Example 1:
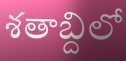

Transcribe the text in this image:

శతాబ్దిలో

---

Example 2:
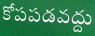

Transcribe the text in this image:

కోపపడవద్దు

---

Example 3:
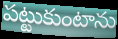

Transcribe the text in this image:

పట్టుకుంటాను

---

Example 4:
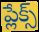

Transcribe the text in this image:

ప్లేక్స్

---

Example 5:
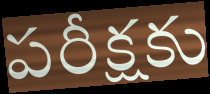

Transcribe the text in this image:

పరీక్షకు